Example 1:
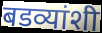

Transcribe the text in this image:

बडव्यांशी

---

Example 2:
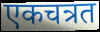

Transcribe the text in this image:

एकचत्रत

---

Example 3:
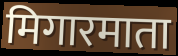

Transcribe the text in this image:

मिगारमाता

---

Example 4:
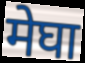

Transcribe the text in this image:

मेघा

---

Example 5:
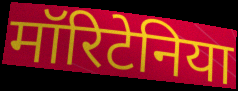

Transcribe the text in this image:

मॉरिटेनिया